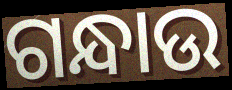
ଗନ୍ଧାଉ